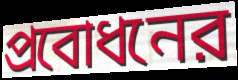
প্রবোধনের